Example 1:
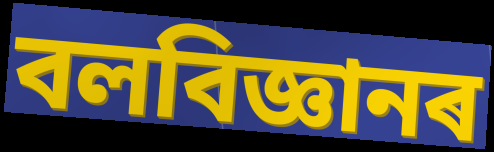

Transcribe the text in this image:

বলবিজ্ঞানৰ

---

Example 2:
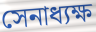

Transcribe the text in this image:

সেনাধ্যক্ষ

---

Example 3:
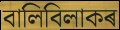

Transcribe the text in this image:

বালিবিলাকৰ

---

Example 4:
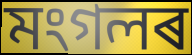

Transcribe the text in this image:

মংগলৰ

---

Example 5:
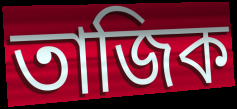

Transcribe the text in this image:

তাজিক